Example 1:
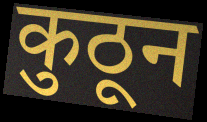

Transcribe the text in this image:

कुठून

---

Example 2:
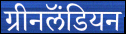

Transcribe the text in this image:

ग्रीनलॅंडियन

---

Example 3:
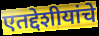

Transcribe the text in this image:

एतद्देशीयांचे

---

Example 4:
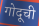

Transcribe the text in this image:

गोदूची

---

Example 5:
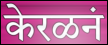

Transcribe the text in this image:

केरळनं